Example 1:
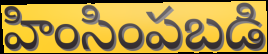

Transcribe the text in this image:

హింసింపబడి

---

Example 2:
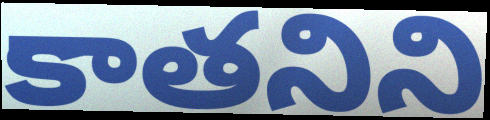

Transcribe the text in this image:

కాతనిని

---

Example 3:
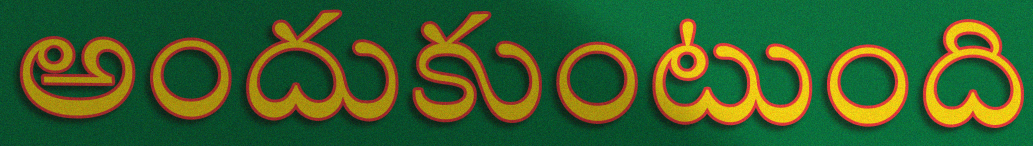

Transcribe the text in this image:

అందుకుంటుంది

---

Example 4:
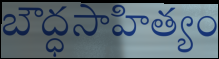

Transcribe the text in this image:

బౌద్ధసాహిత్యం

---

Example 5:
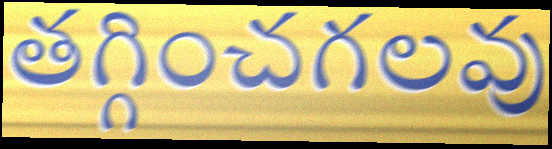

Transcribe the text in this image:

తగ్గించగలవు